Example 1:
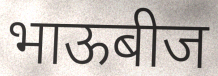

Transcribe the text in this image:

भाऊबीज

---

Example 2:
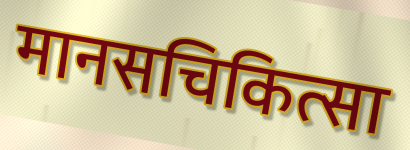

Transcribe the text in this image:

मानसचिकित्सा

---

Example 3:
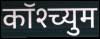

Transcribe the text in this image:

कॉश्च्युम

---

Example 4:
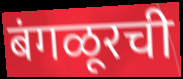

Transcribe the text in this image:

बंगळूरची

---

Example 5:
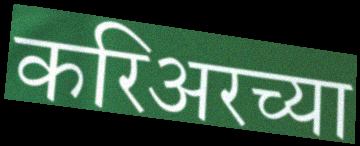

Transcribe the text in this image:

करिअरच्या